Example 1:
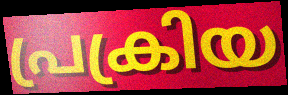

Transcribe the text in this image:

പ്രക്രിയ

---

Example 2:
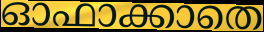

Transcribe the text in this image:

ഓഫാക്കാതെ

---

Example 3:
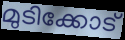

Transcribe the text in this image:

മുടിക്കോട്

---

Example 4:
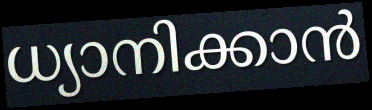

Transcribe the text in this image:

ധ്യാനിക്കാൻ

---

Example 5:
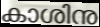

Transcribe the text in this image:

കാശിനു